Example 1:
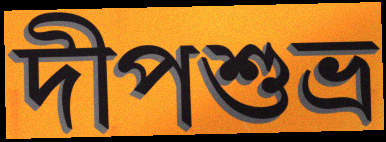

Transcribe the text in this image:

দীপশুভ্র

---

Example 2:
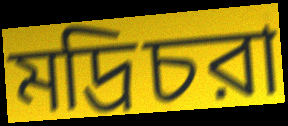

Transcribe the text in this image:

মদ্রিচরা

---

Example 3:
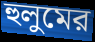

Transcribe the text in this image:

হুলুমের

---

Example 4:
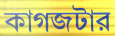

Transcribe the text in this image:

কাগজটার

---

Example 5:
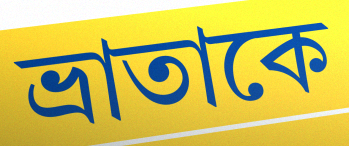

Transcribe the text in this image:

ভ্রাতাকে